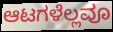
ಆಟಗಳೆಲ್ಲವೂ